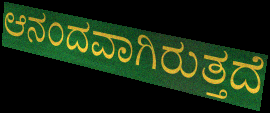
ಆನಂದವಾಗಿರುತ್ತದೆ